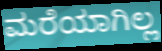
ಮರೆಯಾಗಿಲ್ಲ